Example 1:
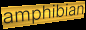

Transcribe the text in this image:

amphibian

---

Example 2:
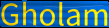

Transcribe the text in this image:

Gholam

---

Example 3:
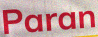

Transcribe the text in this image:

Paran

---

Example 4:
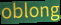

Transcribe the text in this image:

oblong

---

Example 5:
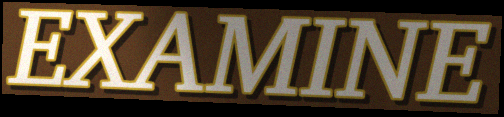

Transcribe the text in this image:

EXAMINE